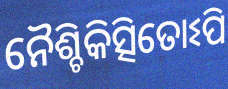
ନୈଶ୍ଚିକିତ୍ସିତୋଽପି